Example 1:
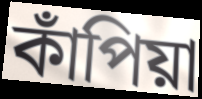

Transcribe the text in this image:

কাঁপিয়া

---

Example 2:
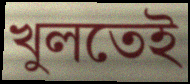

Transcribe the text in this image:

খুলতেই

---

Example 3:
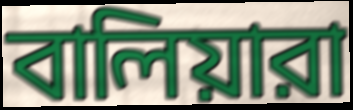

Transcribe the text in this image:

বালিয়ারা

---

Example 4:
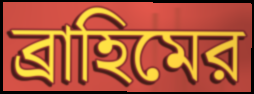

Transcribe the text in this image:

ব্রাহিমের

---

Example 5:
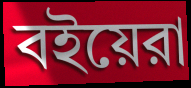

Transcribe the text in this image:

বইয়েরা